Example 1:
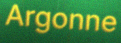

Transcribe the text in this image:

Argonne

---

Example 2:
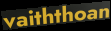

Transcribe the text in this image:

vaiththoan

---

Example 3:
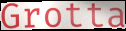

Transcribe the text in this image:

Grotta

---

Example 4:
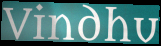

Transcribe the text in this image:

Vindhu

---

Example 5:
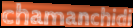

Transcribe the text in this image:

chamanchidi